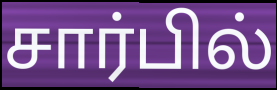
சார்பில்